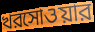
খরসোওয়ার